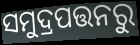
ସମୁଦ୍ରପତ୍ତନରୁ